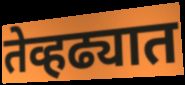
तेव्हढ्यात